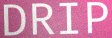
DRIP